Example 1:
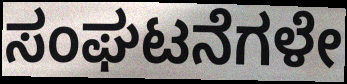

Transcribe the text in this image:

ಸಂಘಟನೆಗಳೇ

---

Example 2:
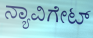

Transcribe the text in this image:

ನ್ಯಾವಿಗೇಟ್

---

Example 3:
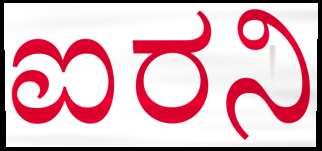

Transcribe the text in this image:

ಐರನಿ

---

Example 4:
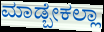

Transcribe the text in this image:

ಮಾಡ್ಬೇಕಲ್ಲಾ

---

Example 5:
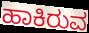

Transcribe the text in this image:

ಹಾಕಿರುವ